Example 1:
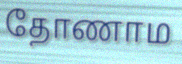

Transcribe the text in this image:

தோணாம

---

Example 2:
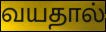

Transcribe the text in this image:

வயதால்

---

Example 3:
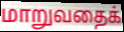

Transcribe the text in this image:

மாறுவதைக்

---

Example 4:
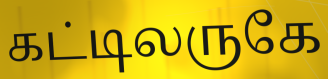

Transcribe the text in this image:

கட்டிலருகே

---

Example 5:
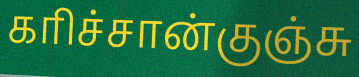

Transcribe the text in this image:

கரிச்சான்குஞ்சு